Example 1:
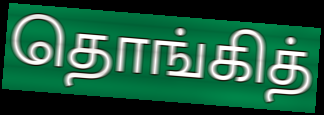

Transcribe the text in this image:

தொங்கித்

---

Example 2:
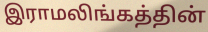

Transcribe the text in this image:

இராமலிங்கத்தின்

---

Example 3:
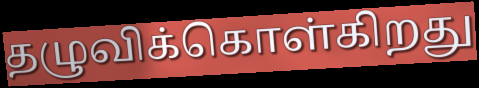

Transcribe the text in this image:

தழுவிக்கொள்கிறது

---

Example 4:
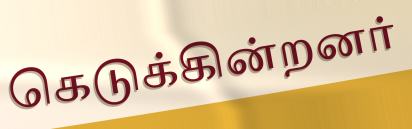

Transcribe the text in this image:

கெடுக்கின்றனர்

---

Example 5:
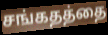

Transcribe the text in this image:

சங்கதத்தை